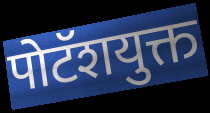
पोटॅशयुक्त